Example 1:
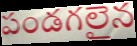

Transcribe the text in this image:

పండగలైన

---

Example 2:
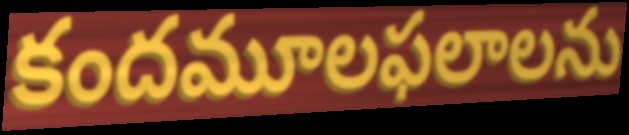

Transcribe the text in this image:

కందమూలఫలాలను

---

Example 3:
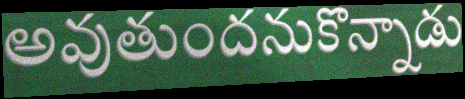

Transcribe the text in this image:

అవుతుందనుకొన్నాడు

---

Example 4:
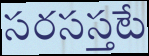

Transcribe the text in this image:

సరసస్తటే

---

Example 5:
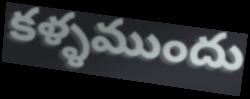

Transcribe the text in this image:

కళ్ళముందు